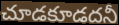
చూడకూడదనీ